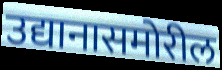
उद्यानासमोरील